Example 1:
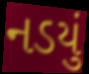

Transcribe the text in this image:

નડયું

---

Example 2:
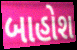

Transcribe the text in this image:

બાહોશ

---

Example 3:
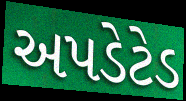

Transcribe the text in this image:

અપડેટેડ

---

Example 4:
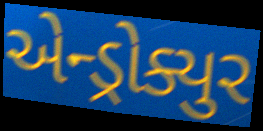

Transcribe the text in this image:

એન્ડ્રોક્યુર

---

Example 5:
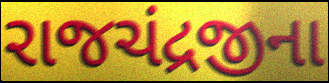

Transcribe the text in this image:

રાજચંદ્રજીના